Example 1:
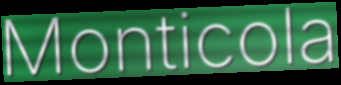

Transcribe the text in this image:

Monticola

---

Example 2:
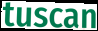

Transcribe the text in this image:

tuscan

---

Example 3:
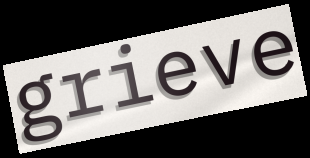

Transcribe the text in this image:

grieve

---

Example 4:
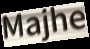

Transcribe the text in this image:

Majhe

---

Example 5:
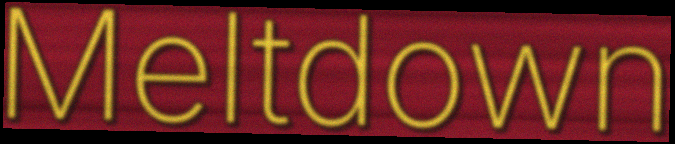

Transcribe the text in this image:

Meltdown